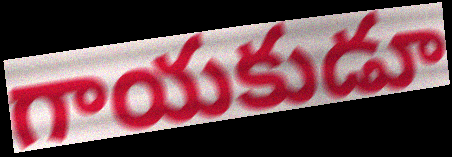
గాయకుడూ